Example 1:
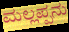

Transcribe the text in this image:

ಮಲ್ಲಪ್ಪನು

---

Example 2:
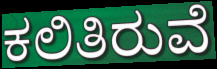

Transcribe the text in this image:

ಕಲಿತಿರುವೆ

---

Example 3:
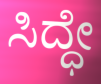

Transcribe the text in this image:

ಸಿದ್ಧೇ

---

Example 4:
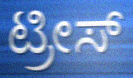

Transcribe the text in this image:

ಟ್ರೀಸ್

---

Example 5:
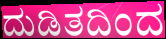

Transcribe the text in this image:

ದುಡಿತದಿಂದ